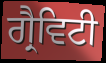
ਗ੍ਰੈਵਿਟੀ